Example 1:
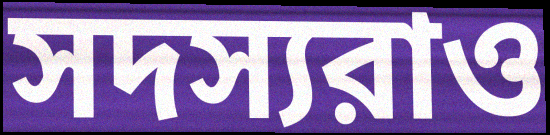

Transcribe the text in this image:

সদস্যরাও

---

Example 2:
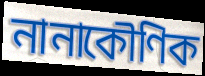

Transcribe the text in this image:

নানাকৌণিক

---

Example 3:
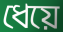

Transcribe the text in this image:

ধেয়ে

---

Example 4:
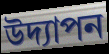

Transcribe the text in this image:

উদ্যাপন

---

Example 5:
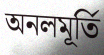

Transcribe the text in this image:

অনলমূর্তি